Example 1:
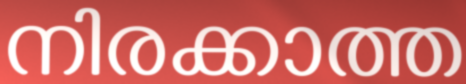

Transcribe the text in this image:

നിരക്കാത്ത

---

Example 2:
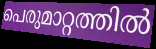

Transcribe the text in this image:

പെരുമാറ്റത്തിൽ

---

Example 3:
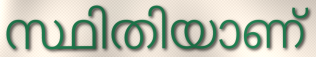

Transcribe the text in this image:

സ്ഥിതിയാണ്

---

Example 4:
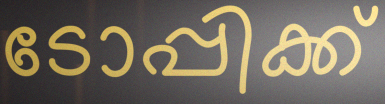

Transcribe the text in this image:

ടോപ്പിക്ക്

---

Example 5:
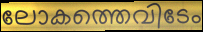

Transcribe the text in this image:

ലോകത്തെവിടേം